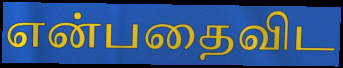
என்பதைவிட